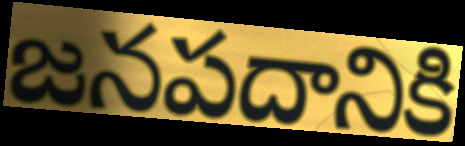
జనపదానికి